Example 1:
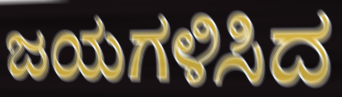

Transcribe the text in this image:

ಜಯಗಳಿಸಿದ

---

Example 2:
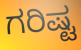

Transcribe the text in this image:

ಗರಿಷ್ಟ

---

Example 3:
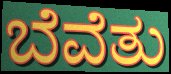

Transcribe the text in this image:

ಬೆವೆತು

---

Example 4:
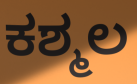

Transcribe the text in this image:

ಕಶ್ಮಲ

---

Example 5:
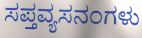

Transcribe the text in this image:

ಸಪ್ತವ್ಯಸನಂಗಳು